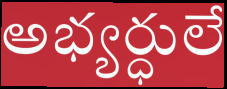
అభ్యర్ధులే